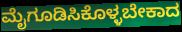
ಮೈಗೂಡಿಸಿಕೊಳ್ಳಬೇಕಾದ